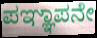
ಪಞ್ಞಾಪನೇ